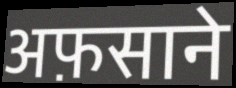
अफ़साने